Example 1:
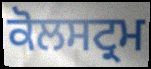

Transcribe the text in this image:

ਕੋਲਸਟ੍ਰਮ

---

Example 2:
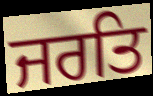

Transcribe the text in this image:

ਜਰਤਿ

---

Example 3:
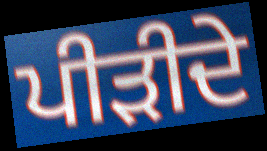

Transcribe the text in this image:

ਪੀੜੀਦੇ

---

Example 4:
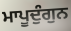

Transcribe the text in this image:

ਮਾਪੂਦੁੰਗੁਨ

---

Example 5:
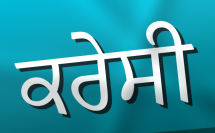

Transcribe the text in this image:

ਕਰੇਸੀ